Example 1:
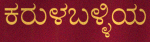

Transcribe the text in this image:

ಕರುಳಬಳ್ಳಿಯ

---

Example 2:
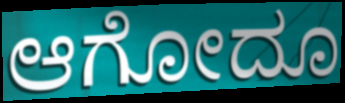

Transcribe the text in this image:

ಆಗೋದೂ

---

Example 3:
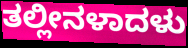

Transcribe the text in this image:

ತಲ್ಲೀನಳಾದಳು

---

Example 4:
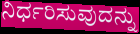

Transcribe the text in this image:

ನಿರ್ಧರಿಸುವುದನ್ನು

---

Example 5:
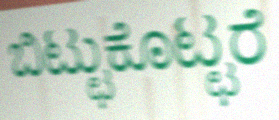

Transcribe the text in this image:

ಬಿಟ್ಟುಕೊಟ್ಟರೆ